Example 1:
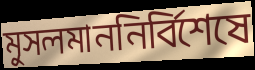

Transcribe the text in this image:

মুসলমাননির্বিশেষে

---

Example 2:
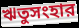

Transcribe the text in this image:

ঋতুসংহার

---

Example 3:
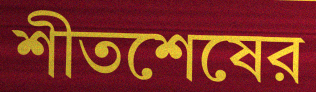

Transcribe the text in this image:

শীতশেষের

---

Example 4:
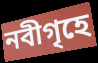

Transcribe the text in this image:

নবীগৃহে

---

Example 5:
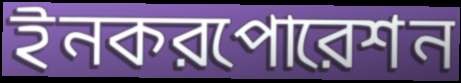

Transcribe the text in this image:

ইনকরপোরেশন